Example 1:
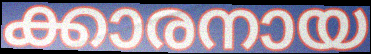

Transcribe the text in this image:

ക്കാരനായ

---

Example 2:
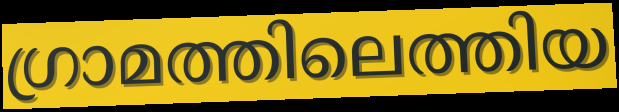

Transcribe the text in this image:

ഗ്രാമത്തിലെത്തിയ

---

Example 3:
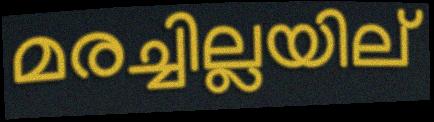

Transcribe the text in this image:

മരച്ചില്ലയില്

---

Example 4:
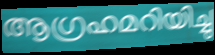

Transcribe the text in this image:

ആഗ്രഹമറിയിച്ചു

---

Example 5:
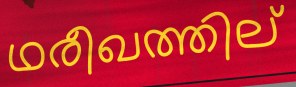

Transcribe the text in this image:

ഥരീഖത്തില്